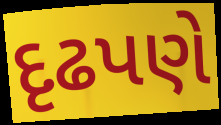
દૃઢપણે